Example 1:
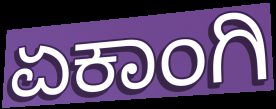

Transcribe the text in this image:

ಏಕಾಂಗಿ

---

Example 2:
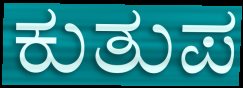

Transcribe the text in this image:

ಕುತುಪ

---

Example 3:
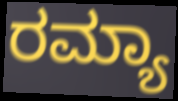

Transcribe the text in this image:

ರಮ್ಯಾ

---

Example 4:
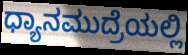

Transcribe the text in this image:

ಧ್ಯಾನಮುದ್ರೆಯಲ್ಲಿ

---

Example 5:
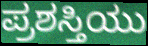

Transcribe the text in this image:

ಪ್ರಶಸ್ತಿಯು